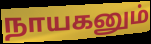
நாயகனும்